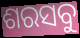
ଶରସବୁ